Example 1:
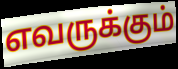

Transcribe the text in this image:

எவருக்கும்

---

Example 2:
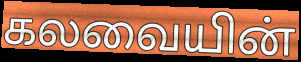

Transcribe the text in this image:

கலவையின்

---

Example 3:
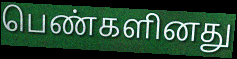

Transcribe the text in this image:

பெண்களினது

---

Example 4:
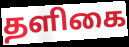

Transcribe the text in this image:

தளிகை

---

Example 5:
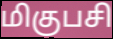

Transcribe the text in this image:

மிகுபசி